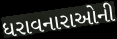
ધરાવનારાઓની